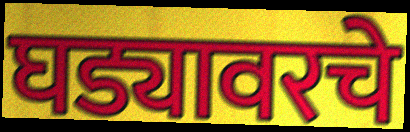
घड्यावरचे